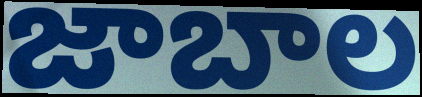
జాబాల